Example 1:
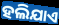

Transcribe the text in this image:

ହଲିଯାଏ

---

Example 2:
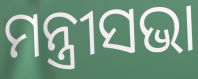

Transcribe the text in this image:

ମନ୍ତ୍ରୀସଭା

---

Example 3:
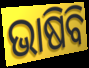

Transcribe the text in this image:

ଭାଷିବି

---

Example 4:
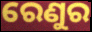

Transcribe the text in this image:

ରେଣୁର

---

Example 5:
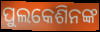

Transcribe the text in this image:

ପୁଲକେଶିନଙ୍କ